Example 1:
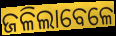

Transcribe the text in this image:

ଜଳିଲାବେଳେ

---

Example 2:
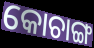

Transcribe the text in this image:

କୋଚାଙ୍ଗ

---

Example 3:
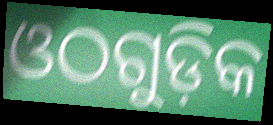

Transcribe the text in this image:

ଓଠଗୁଡ଼ିକ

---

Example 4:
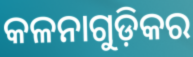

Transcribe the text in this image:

କଳନାଗୁଡ଼ିକର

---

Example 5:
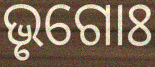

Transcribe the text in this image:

ଭୃଗୋଃ